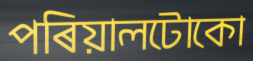
পৰিয়ালটোকো